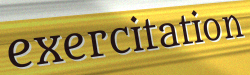
exercitation